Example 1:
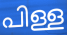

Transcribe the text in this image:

പിള്ള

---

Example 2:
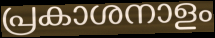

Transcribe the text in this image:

പ്രകാശനാളം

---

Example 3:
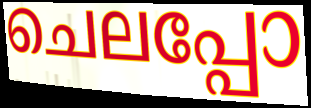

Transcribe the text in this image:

ചെലപ്പോ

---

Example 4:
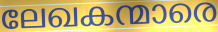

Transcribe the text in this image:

ലേഖകന്മാരെ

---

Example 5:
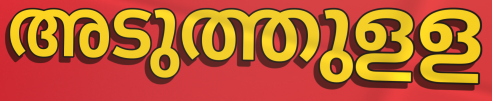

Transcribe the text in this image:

അടുത്തുളള